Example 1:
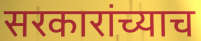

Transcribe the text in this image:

सरकारांच्याच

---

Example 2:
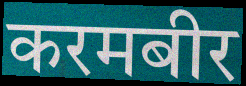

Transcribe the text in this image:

करमबीर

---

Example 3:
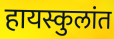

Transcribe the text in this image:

हायस्कुलांत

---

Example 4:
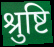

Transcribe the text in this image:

श्रुष्टि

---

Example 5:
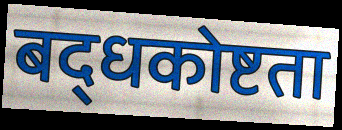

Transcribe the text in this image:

बद्धकोष्टता